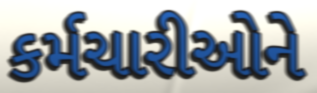
કર્મચારીઓને